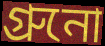
গ্রুনো